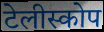
टेलीस्कोप